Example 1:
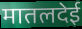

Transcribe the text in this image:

मातलदेई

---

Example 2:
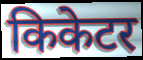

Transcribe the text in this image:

किकेटर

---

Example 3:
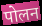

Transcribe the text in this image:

पोलन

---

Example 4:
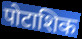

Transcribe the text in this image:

पोटाशिक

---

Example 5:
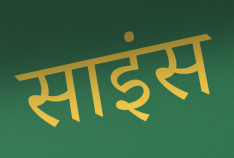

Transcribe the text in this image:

साइंस